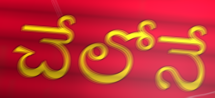
చేలోనే